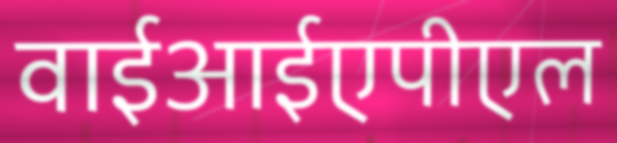
वाईआईएपीएल